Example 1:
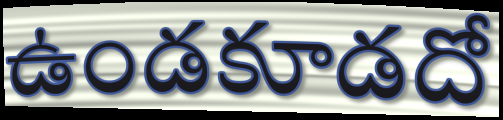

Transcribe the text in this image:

ఉండకూడదో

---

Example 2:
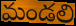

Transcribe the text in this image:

మండలి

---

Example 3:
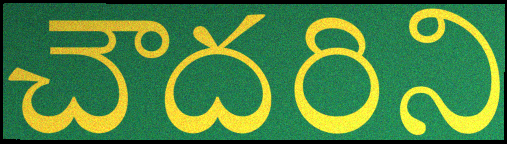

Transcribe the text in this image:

చౌదరిని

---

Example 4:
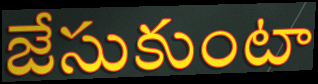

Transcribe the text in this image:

జేసుకుంటా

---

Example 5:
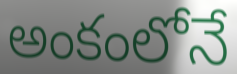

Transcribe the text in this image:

అంకంలోనే